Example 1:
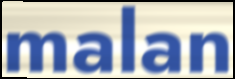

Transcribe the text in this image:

malan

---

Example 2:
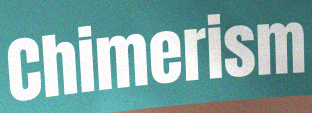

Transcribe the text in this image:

Chimerism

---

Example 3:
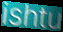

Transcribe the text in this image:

ishtu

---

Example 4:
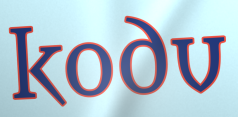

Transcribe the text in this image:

kodu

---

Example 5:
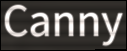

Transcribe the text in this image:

Canny